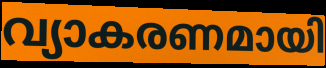
വ്യാകരണമായി